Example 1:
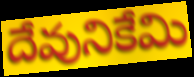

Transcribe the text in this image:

దేవునికేమి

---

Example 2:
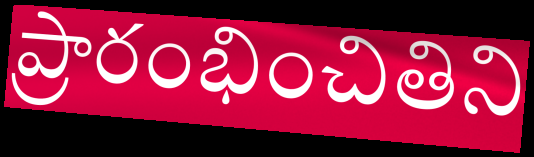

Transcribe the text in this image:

ప్రారంభించితిని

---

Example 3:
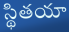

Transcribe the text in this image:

స్థితయా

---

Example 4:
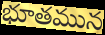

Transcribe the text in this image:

భూతమున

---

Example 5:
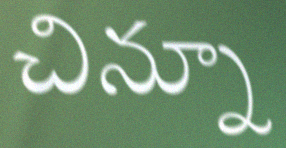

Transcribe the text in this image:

చిన్నూ